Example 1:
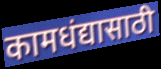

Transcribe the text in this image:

कामधंद्यासाठी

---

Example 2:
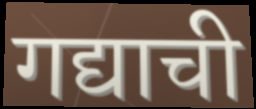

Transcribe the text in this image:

गद्याची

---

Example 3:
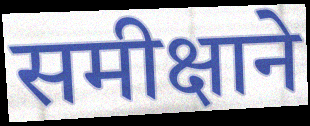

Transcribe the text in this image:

समीक्षाने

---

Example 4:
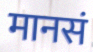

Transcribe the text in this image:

मानसं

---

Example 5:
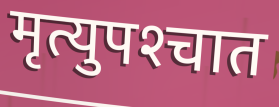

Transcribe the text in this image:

मृत्युपश्चात